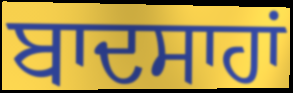
ਬਾਦਸਾਹਾਂ